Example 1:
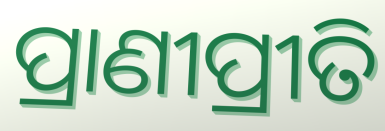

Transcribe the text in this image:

ପ୍ରାଣୀପ୍ରୀତି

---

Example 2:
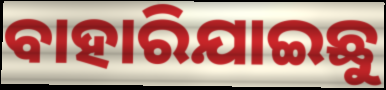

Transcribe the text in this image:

ବାହାରିଯାଇଛୁ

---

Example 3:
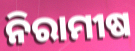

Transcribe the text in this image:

ନିରାମୀଷ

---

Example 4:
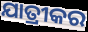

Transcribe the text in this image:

ଯାତ୍ରୀକର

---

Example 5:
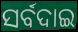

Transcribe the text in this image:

ସର୍ବଦାଇ